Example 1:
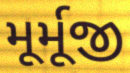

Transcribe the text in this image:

મૂર્મૂજી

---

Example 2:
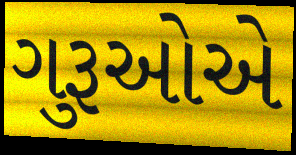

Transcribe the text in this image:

ગુરૂઓએ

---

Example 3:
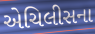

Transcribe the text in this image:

એચિલીસના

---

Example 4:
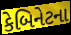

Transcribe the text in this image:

કેબિનેટના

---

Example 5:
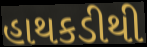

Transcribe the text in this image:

હાથકડીથી